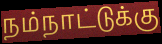
நம்நாட்டுக்கு